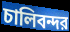
চালিবন্দর